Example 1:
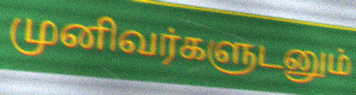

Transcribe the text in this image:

முனிவர்களுடனும்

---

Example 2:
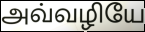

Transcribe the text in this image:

அவ்வழியே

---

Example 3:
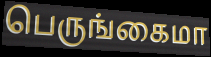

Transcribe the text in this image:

பெருங்கைமா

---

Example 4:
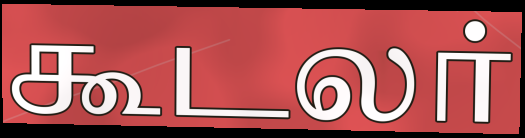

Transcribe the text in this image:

கூடலர்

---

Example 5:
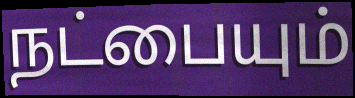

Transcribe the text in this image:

நட்பையும்